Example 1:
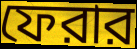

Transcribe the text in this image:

ফেরার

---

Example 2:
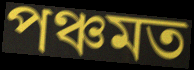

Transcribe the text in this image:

পঞ্চমত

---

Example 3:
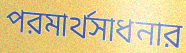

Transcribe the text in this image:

পরমার্থসাধনার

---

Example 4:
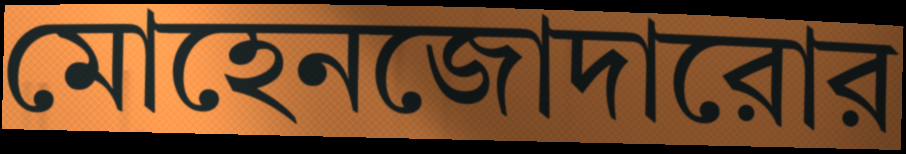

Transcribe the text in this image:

মোহেনজোদারোর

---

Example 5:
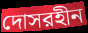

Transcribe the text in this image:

দোসরহীন